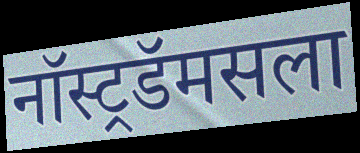
नॉस्ट्रडॅमसला